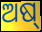
ଅଷ୍